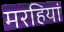
मरहियां